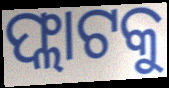
ଫ୍ଲାଟକୁ